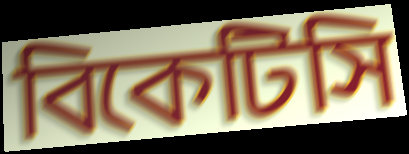
বিকেটিসি